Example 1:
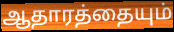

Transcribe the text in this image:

ஆதாரத்தையும்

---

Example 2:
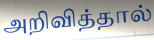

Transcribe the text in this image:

அறிவித்தால்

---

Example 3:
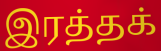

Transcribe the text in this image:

இரத்தக்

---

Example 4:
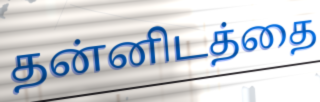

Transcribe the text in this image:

தன்னிடத்தை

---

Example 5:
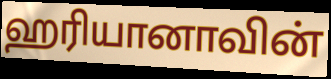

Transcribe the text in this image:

ஹரியானாவின்